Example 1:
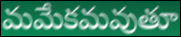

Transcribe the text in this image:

మమేకమవుతూ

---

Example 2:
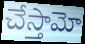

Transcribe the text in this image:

చేస్తామో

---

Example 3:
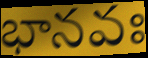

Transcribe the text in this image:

భానవః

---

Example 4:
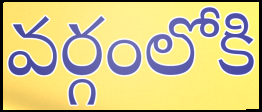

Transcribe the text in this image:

వర్గంలోకి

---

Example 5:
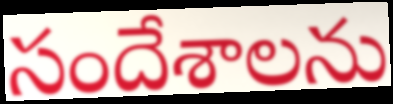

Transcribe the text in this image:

సందేశాలను